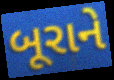
બૂરાને